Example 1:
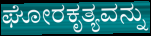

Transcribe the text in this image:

ಘೋರಕೃತ್ಯವನ್ನು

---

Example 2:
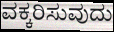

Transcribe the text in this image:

ವಕ್ಕರಿಸುವುದು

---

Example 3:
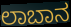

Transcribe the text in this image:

ಲಾಬಾನ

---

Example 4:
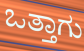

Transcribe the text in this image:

ಒತ್ತಾಗು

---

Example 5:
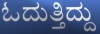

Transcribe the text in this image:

ಓದುತ್ತಿದ್ದು